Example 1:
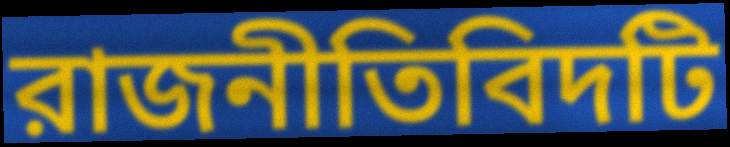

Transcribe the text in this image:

রাজনীতিবিদটি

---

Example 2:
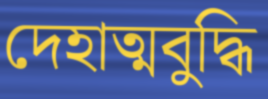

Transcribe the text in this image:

দেহাত্মবুদ্ধি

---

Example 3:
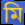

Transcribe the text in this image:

মি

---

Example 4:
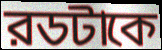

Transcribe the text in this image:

রডটাকে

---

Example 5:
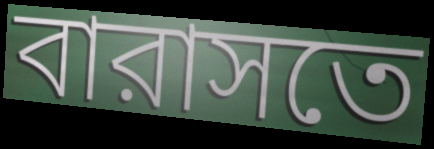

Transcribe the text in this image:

বারাসতে